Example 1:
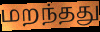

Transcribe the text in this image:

மறந்தது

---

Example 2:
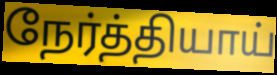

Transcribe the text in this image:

நேர்த்தியாய்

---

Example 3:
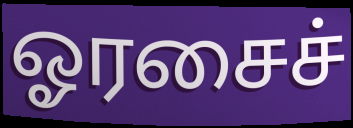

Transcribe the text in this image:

ஓரசைச்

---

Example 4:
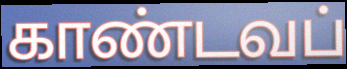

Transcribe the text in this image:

காண்டவப்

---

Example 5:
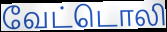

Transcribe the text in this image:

வேட்டொலி